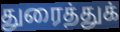
துரைத்துக்